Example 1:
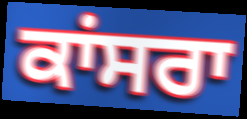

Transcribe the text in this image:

ਕਾਂਸਰਾ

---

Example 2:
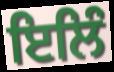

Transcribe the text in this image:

ਇਲਿੰ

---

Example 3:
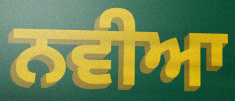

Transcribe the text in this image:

ਨਵੀਆ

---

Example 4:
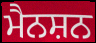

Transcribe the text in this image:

ਮੈਨਸ਼ਨ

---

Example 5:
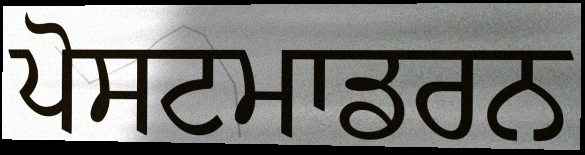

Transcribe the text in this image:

ਪੋਸਟਮਾਡਰਨ